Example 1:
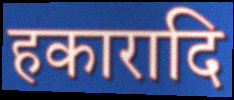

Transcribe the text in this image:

हकारादि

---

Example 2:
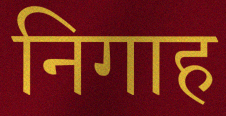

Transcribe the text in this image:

निगाह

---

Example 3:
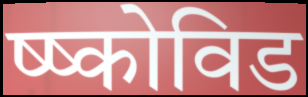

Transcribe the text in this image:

ष्ष्कोविड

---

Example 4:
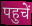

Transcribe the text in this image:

पहुचें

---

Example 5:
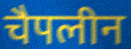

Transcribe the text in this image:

चैपलीन